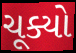
ચૂક્યો